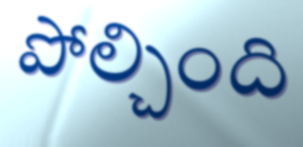
పోల్చింది